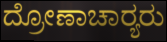
ದ್ರೋಣಾಚಾರ‍್ಯರು